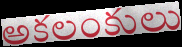
అకలంకులు